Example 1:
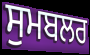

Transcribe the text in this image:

ਸੁਮਬਲਰ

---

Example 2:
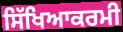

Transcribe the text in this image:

ਸਿੱਖਿਆਕਰਮੀ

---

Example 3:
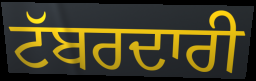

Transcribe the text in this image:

ਟੱਬਰਦਾਰੀ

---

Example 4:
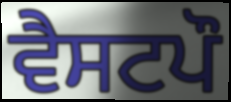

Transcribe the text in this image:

ਵੈਸਟਪੌ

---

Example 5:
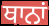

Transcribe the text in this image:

ਥਾਨਾਂ